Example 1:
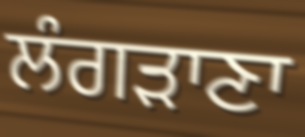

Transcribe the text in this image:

ਲੰਗੜਾਣਾ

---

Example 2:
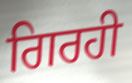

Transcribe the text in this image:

ਗਿਰਹੀ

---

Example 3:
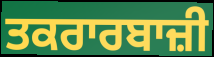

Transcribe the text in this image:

ਤਕਰਾਰਬਾਜ਼ੀ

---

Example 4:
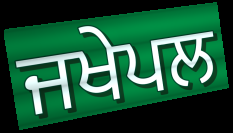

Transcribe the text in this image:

ਜਖੇਪਲ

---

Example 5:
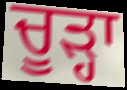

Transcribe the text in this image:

ਚੂੜ੍ਹਾ